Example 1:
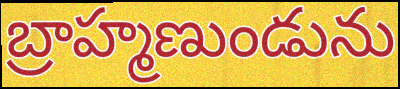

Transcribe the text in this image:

బ్రాహ్మణుండును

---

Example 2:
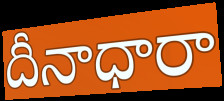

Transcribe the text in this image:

దీనాధారా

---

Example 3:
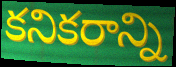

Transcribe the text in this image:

కనికరాన్ని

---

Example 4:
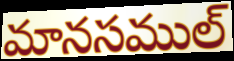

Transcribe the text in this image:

మానసముల్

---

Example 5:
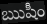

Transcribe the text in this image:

ఋషీం